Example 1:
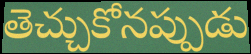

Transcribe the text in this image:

తెచ్చుకోనప్పుడు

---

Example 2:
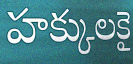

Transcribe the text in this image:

హక్కులకై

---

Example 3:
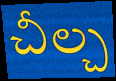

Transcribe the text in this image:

చీల్చ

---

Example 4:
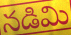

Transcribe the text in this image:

నడిమి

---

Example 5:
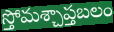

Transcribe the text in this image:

స్తోమశ్చాప్తబలం